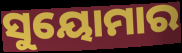
ସୁୟୋମାର